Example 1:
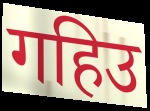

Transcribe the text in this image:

गहिउ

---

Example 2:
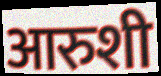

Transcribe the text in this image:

आरुशी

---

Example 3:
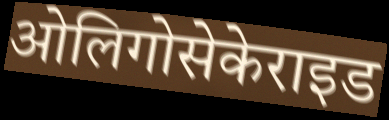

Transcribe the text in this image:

ओलिगोसेकेराइड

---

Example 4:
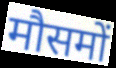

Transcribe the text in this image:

मौसमों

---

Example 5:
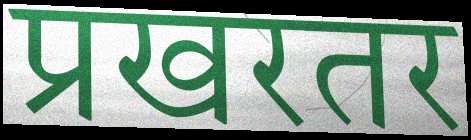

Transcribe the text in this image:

प्रखरतर